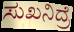
ಸುಖನಿದ್ರೆ